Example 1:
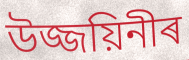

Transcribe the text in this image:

উজ্জয়িনীৰ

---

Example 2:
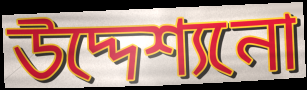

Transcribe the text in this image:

উদ্দেশ্যনো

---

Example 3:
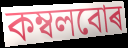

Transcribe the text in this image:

কম্বলবোৰ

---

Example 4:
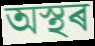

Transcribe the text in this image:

অস্থৰ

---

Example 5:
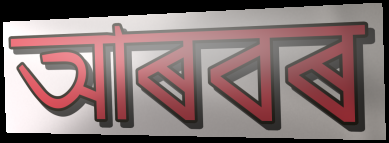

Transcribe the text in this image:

আৰবৰ